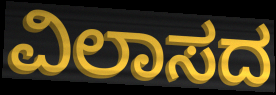
ವಿಲಾಸದ